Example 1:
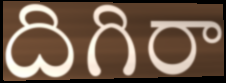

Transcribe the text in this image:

దిగిరా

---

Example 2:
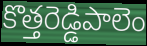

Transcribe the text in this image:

కొత్తరెడ్డిపాలెం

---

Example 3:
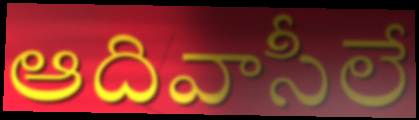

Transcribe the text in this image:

ఆదివాసీలే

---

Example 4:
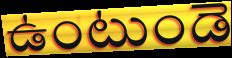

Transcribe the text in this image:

ఉంటుండె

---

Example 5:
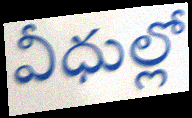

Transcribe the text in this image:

వీధుల్లో